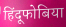
हिंदूफोबिया